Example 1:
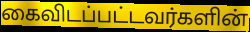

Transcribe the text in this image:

கைவிடப்பட்டவர்களின்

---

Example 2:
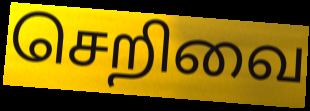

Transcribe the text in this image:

செறிவை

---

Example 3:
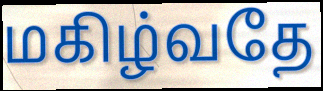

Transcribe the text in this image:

மகிழ்வதே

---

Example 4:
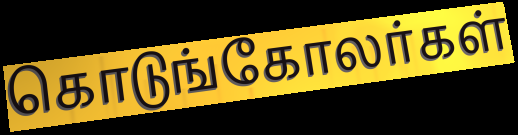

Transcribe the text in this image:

கொடுங்கோலர்கள்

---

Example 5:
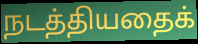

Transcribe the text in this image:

நடத்தியதைக்